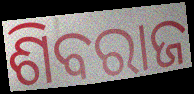
ଶିବରାଜ